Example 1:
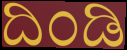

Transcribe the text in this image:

ದಿಂಡಿ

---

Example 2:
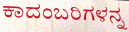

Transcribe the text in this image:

ಕಾದಂಬರಿಗಳನ್ನ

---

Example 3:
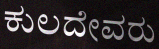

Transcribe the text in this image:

ಕುಲದೇವರು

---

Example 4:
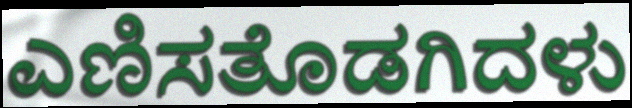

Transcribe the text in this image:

ಎಣಿಸತೊಡಗಿದಳು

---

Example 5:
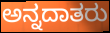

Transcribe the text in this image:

ಅನ್ನದಾತರು